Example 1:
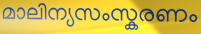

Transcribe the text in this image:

മാലിന്യസംസ്കരണം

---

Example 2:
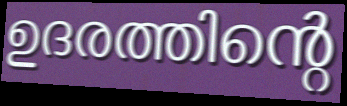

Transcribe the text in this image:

ഉദരത്തിന്റെ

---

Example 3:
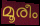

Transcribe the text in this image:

മൂരീം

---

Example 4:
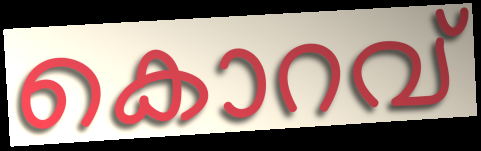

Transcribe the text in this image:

കൊറവ്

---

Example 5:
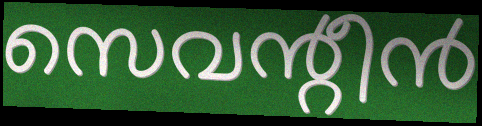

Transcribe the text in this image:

സെവന്റീൻ